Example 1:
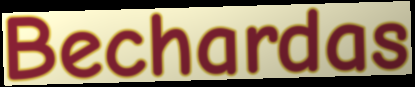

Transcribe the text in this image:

Bechardas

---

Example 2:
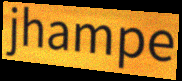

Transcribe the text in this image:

jhampe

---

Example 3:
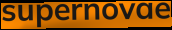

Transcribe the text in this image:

supernovae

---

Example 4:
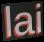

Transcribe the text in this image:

lai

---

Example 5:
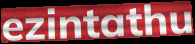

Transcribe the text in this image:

ezintathu